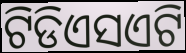
ଟିଡିଏସଏଟି